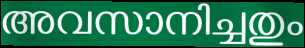
അവസാനിച്ചതും